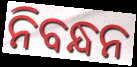
ନିବନ୍ଧନ